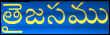
తైజసము